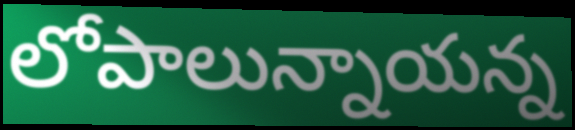
లోపాలున్నాయన్న